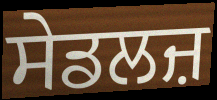
ਸੇਡਲਜ਼